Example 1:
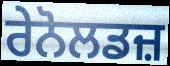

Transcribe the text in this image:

ਰੇਨੋਲਡਜ਼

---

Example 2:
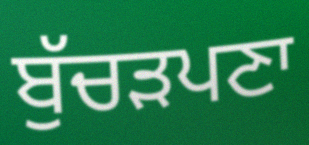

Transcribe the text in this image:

ਬੁੱਚੜਪਣਾ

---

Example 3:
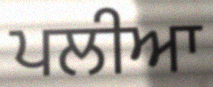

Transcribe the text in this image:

ਪਲੀਆ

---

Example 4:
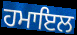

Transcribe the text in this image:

ਹਮਾਇਲ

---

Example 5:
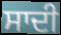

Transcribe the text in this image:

ਸਾਦੀ